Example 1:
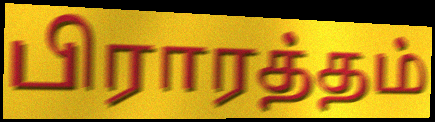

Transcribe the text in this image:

பிராரத்தம்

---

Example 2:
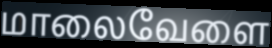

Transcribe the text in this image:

மாலைவேளை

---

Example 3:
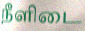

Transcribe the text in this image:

நீளிடை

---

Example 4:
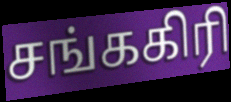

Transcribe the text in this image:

சங்ககிரி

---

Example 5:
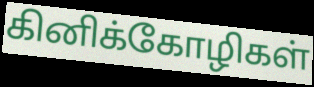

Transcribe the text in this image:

கினிக்கோழிகள்